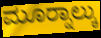
ಮೂರ‍್ನಾಲ್ಕು